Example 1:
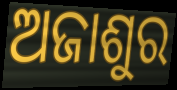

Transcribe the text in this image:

ଅଜାଶୁର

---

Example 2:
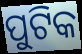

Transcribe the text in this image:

ପୁଟିକ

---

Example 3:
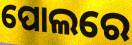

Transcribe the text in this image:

ପୋଲରେ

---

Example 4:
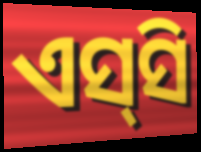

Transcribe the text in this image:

ଏସ୍‌ସି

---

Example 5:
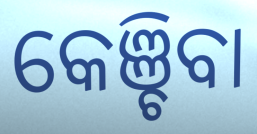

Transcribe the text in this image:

କେଞ୍ଚିବା